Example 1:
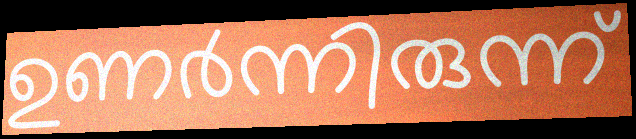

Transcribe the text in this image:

ഉണർന്നിരുന്ന്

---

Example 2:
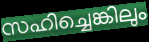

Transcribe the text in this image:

സഹിച്ചെങ്കിലും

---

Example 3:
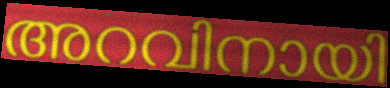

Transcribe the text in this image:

അറവിനായി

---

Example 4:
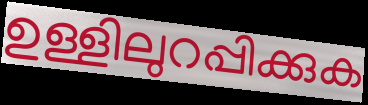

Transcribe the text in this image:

ഉള്ളിലുറപ്പിക്കുക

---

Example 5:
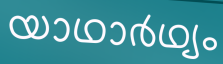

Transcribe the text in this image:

യാഥാർഥ്യം